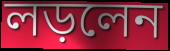
লড়লেন